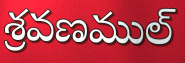
శ్రవణముల్